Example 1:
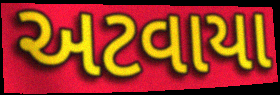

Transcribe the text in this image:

અટવાયા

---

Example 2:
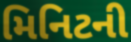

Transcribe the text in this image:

મિનિટની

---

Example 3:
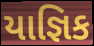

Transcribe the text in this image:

યાજ્ઞિક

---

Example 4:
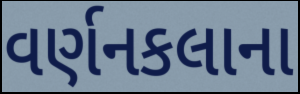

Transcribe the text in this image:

વર્ણનકલાના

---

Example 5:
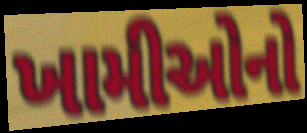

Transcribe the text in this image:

ખામીઓનો